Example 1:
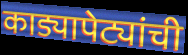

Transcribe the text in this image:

काड्यापेट्यांची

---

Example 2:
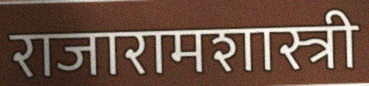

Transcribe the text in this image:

राजारामशास्त्री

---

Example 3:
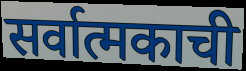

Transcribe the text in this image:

सर्वात्मकाची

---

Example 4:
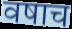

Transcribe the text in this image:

वषाच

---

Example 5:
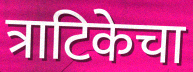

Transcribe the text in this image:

त्राटिकेचा